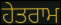
ਹੇਤਰਾਮ